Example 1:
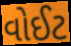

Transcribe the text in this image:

વોઈટ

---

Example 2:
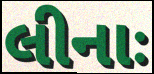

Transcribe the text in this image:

લીનાઃ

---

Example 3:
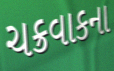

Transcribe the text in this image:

ચક્રવાકના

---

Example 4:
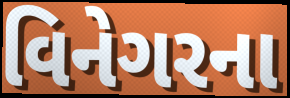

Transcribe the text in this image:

વિનેગરના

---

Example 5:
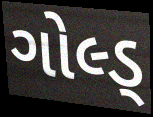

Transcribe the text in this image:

ગોલ્ડ્